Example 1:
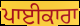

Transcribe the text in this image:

ਪਾਈਕਾਰਾ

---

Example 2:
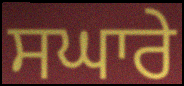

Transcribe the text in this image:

ਸਘਾਰੇ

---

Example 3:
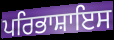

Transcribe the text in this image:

ਪਰਿਭਾਸ਼ਾਇਸ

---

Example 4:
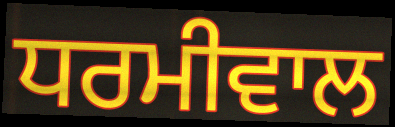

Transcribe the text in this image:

ਧਰਮੀਵਾਲ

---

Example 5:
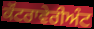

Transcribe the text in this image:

ਕੌਂਟਰਾਵੇਰੀਅੰਟ